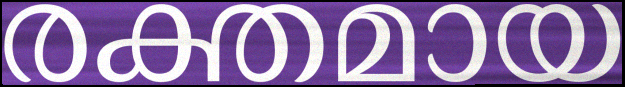
രക്തമായ